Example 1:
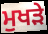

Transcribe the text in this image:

ਮੁਖੜੇ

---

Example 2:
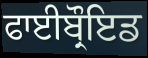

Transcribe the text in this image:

ਫਾਈਬ੍ਰੌਇਡ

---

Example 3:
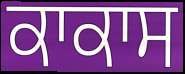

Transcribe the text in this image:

ਕਾਕਾਸ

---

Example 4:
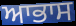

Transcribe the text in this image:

ਆਭਾਸ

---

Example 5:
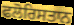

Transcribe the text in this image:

ਫਲੋਰਿਸਤਾਨ